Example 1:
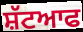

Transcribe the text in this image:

ਸ਼ੱਟਆਫ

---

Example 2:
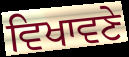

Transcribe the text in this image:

ਵਿਖਾਵਣੇ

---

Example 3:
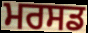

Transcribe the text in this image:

ਮਰਸਡ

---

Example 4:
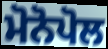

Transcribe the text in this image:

ਮੋਨੋਪੋਲ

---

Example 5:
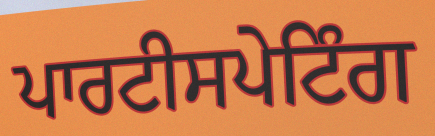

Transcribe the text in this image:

ਪਾਰਟੀਸਪੇਟਿੰਗ